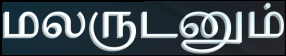
மலருடனும்